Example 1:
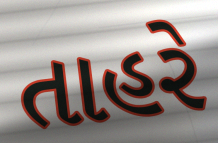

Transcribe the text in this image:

તાહરે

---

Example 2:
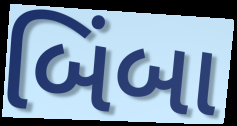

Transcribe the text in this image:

બિંબા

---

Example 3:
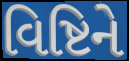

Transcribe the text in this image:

વિષ્ટિને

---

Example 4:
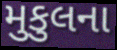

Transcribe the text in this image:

મુકુલના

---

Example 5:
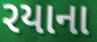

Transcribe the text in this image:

રયાના